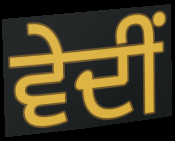
ਵੇਦੀਂ